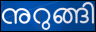
നുറുങ്ങി